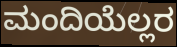
ಮಂದಿಯೆಲ್ಲರ